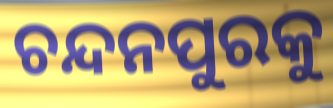
ଚନ୍ଦନପୁରକୁ